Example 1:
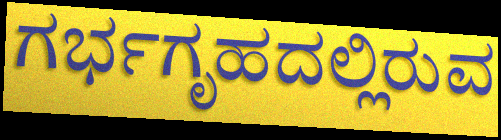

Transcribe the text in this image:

ಗರ್ಭಗೃಹದಲ್ಲಿರುವ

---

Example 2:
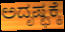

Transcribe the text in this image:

ಅದೃಷ್ಟಕ್ಕೆ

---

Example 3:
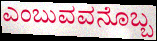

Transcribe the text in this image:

ಎಂಬುವವನೊಬ್ಬ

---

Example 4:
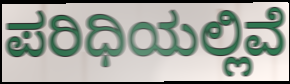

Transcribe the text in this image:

ಪರಿಧಿಯಲ್ಲಿವೆ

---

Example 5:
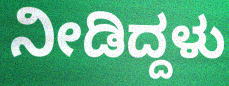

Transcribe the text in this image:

ನೀಡಿದ್ದಳು